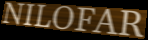
NILOFAR